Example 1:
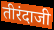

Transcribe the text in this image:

तीरंदाजी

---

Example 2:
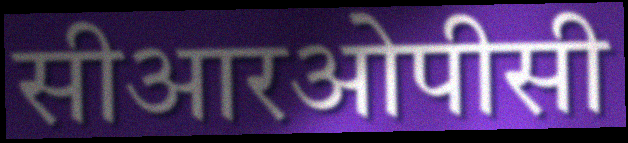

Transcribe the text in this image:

सीआरओपीसी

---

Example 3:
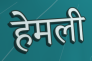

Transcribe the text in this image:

हेमली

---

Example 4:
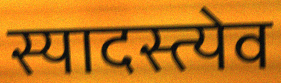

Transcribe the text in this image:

स्यादस्त्येव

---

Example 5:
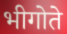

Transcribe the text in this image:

भीगोते